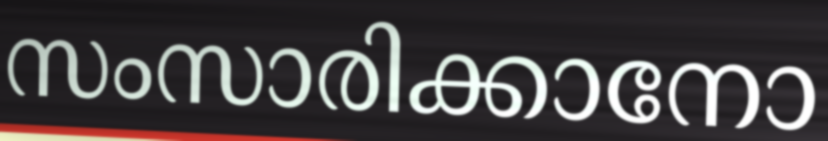
സംസാരിക്കാനോ